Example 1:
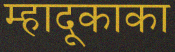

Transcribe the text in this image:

म्हादूकाका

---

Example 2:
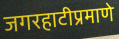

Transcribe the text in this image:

जगरहाटीप्रमाणे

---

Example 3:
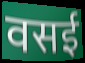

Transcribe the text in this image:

वसई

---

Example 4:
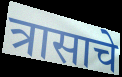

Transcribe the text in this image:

त्रासाचे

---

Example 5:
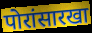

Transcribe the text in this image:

पोरांसारखा